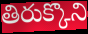
తిరుక్కొని